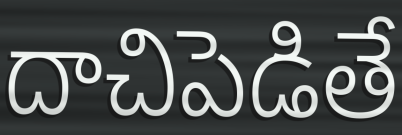
దాచిపెడితే